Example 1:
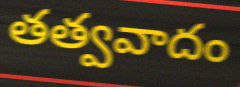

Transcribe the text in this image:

తత్వవాదం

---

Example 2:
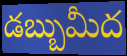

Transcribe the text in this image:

డబ్బుమీద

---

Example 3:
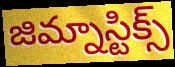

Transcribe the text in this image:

జిమ్నాస్టిక్స్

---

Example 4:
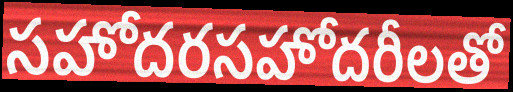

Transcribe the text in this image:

సహోదరసహోదరీలతో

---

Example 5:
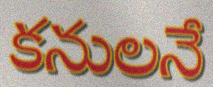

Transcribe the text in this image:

కనులనే